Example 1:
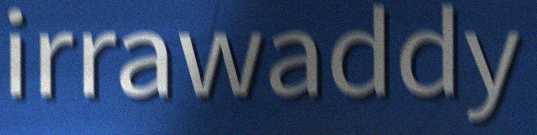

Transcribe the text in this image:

irrawaddy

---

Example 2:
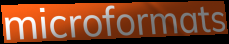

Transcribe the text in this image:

microformats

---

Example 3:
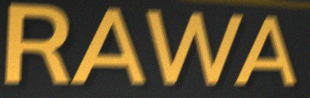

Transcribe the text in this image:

RAWA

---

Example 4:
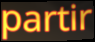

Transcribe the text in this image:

partir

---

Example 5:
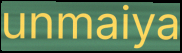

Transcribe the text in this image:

unmaiya